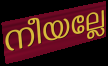
നീയല്ലേ